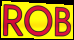
ROB